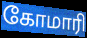
கோமாரி